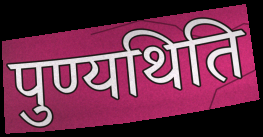
पुण्यथिति